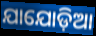
ଯାଯୋଡ଼ିଆ